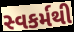
સ્વકર્મથી